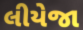
લીયેજા